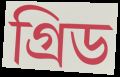
গ্রিড